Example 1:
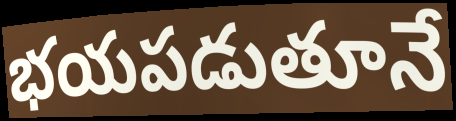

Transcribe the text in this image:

భయపడుతూనే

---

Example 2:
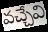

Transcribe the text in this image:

వచ్చేవి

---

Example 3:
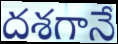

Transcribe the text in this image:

దశగానే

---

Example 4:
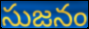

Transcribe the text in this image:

సుజనం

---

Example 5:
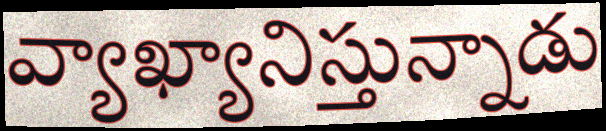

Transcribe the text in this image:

వ్యాఖ్యానిస్తున్నాడు